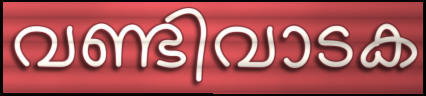
വണ്ടിവാടക